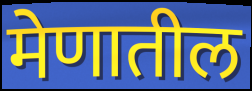
मेणातील